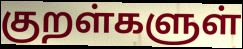
குறள்களுள்